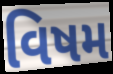
વિષમ